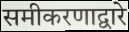
समीकरणाद्वारे